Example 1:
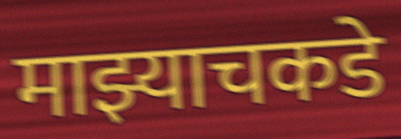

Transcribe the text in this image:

माझ्याचकडे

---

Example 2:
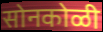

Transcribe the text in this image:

सोनकोळी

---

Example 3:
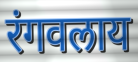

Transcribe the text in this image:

रंगवलाय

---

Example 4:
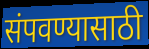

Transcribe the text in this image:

संपवण्यासाठी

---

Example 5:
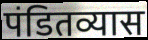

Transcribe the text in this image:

पंडितव्यास